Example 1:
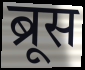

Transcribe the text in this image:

ब्रूस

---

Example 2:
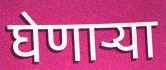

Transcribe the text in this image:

घेणाऱ्या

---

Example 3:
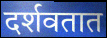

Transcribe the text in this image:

दर्शवतात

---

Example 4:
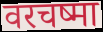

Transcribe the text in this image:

वरचष्मा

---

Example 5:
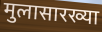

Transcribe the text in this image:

मुलासारख्या